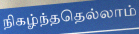
நிகழ்ந்ததெல்லாம்